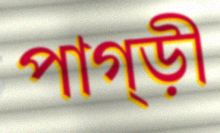
পাগ্ড়ী